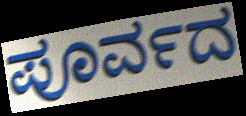
ಪೂರ್ವದ